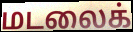
மடலைக்